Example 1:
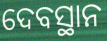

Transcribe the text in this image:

ଦେବସ୍ଥାନ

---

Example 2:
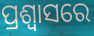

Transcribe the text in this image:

ପ୍ରଶ୍ବାସରେ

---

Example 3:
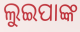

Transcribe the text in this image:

ଲୁଇପାଙ୍କ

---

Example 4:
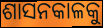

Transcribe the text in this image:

ଶାସନକାଳକୁ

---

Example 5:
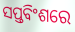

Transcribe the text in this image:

ସପ୍ତବିଂଶରେ